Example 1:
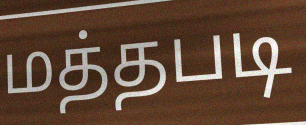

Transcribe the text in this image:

மத்தபடி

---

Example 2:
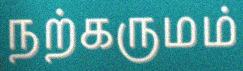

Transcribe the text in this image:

நற்கருமம்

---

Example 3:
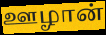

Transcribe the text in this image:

ஊழான்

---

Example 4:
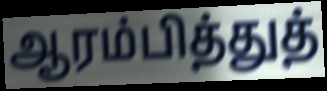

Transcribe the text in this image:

ஆரம்பித்துத்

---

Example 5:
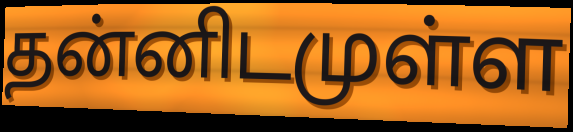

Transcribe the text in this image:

தன்னிடமுள்ள